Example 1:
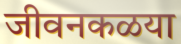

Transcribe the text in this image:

जीवनकळया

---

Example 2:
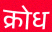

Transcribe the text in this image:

क्रोध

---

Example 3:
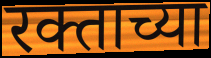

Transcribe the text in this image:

रक्ताच्या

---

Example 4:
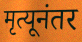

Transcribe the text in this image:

मृत्यूनंतर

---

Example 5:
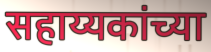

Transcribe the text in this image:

सहाय्यकांच्या